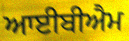
ਆਈਬੀਐਮ